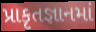
પ્રાકૃતજ્ઞાનમાં